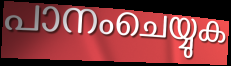
പാനംചെയ്യുക